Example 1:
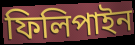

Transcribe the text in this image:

ফিলিপাইন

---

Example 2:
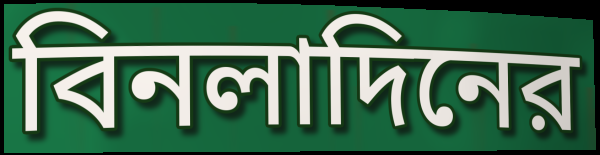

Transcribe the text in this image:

বিনলাদিনের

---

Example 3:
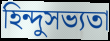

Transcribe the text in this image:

হিন্দুসভ্যতা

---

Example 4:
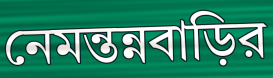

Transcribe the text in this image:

নেমন্তন্নবাড়ির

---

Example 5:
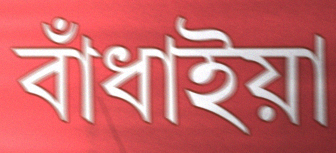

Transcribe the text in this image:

বাঁধাইয়া